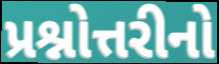
પ્રશ્નોત્તરીનો